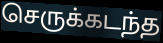
செருக்கடந்த